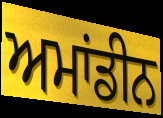
ਅਮਾਂਡੀਨ